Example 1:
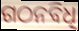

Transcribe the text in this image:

ଗଠନବିଧି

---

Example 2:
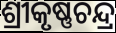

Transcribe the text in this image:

ଶ୍ରୀକୃଷ୍ଣଚନ୍ଦ୍ର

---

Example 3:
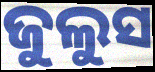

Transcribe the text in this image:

ଜୁଲୁସ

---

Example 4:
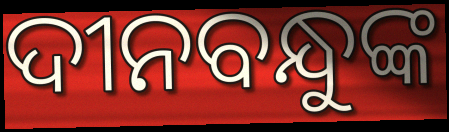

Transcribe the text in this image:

ଦୀନବନ୍ଧୁଙ୍କ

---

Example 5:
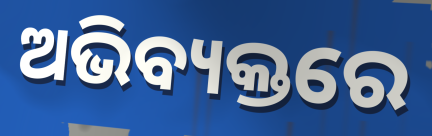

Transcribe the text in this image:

ଅଭିବ୍ୟକ୍ତରେ